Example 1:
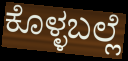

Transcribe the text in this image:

ಕೊಳ್ಳಬಲ್ಲೆ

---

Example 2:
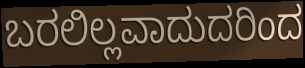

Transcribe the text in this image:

ಬರಲಿಲ್ಲವಾದುದರಿಂದ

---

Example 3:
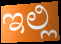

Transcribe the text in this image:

ಇಲ್ಲಿ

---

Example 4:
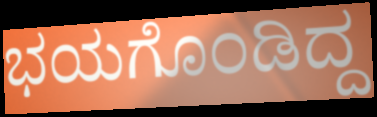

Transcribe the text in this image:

ಭಯಗೊಂಡಿದ್ದ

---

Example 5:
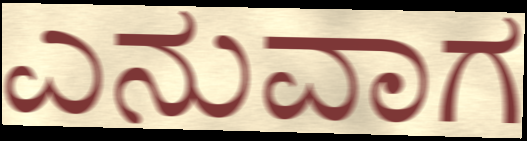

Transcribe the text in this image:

ಎನುವಾಗ